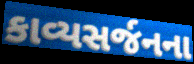
કાવ્યસર્જનના